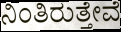
ನಿಂತಿರುತ್ತೇವೆ